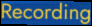
Recording